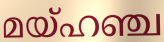
മയ്ഹഞ്ച